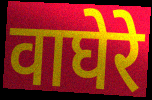
वाघेरे